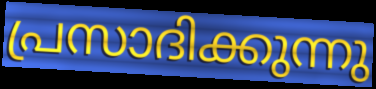
പ്രസാദിക്കുന്നു